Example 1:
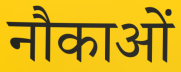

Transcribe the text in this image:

नौकाओं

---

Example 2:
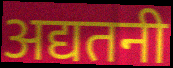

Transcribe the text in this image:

अद्यतनी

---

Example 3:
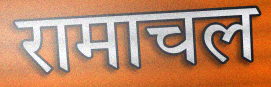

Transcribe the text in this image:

रामाचल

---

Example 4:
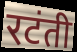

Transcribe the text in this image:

रटंती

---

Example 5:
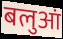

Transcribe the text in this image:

बलुआं